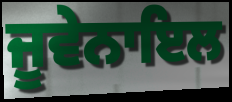
ਜੂਵੇਨਾਇਲ